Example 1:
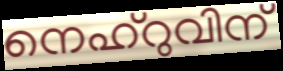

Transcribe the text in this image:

നെഹ്റുവിന്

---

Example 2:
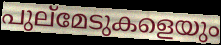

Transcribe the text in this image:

പുല്മേടുകളെയും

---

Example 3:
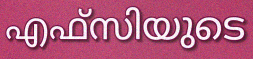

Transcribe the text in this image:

എഫ്സിയുടെ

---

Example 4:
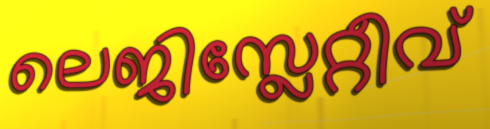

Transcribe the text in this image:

ലെജിസ്ലേറ്റീവ്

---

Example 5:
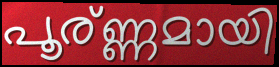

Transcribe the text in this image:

പൂര്ണ്ണമായി